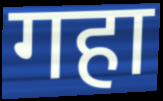
गहा